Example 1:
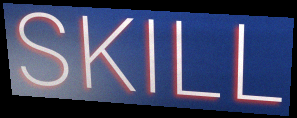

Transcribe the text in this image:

SKILL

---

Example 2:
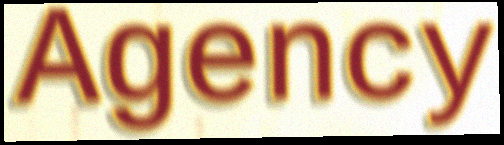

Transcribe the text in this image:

Agency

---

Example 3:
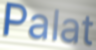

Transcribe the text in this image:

Palat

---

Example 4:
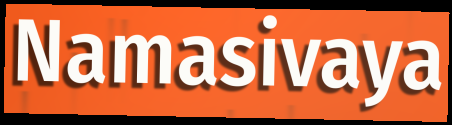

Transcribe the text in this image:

Namasivaya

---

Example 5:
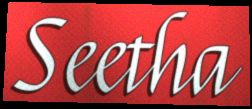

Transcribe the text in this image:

Seetha